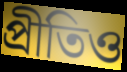
প্রীতিও